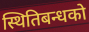
स्थितिबन्धको